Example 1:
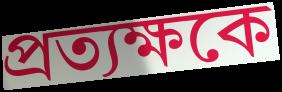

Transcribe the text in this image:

প্রত্যক্ষকে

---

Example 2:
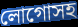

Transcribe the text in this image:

লোগোসহ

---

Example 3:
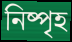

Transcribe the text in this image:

নিষ্পৃহ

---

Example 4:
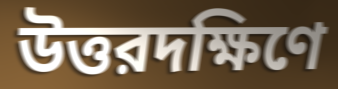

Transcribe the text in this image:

উত্তরদক্ষিণে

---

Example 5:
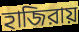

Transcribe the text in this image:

হাজিরায়